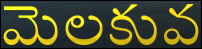
మెలకువ